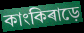
কাংকিৰাড়ে